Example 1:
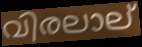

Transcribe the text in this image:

വിരലാല്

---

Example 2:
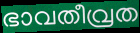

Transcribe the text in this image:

ഭാവതീവ്രത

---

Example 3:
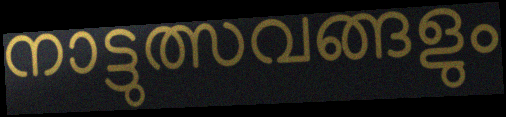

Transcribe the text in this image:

നാട്ടുത്സവങ്ങളും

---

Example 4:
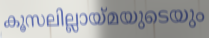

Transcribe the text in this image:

കൂസലില്ലായ്മയുടെയും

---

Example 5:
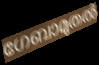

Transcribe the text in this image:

ഗേബാമുതൽ